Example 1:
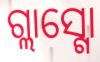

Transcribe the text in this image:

ଗ୍ଲାସ୍ଗୋ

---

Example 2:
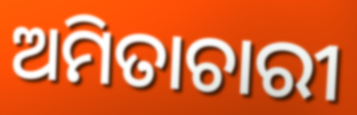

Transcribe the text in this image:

ଅମିତାଚାରୀ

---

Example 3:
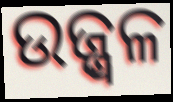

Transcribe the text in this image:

ଉଜ୍ଜ୍ବଳ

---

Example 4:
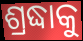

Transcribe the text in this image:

ଶ୍ରଦ୍ଧାକୁ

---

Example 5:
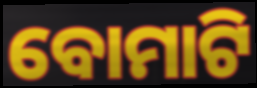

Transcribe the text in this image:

ବୋମାଟି